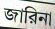
জারিনা